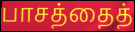
பாசத்தைத்